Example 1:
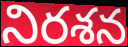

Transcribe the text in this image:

నిరశన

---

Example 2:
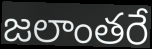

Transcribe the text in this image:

జలాంతరే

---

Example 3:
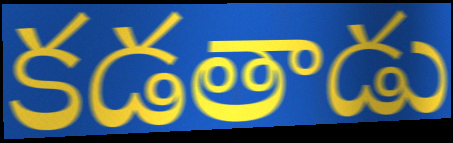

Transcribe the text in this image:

కడతాడు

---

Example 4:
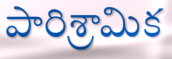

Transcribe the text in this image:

పారిశ్రామిక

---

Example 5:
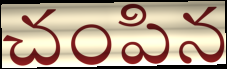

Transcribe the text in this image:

చంపిన